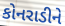
કોનરાડીને